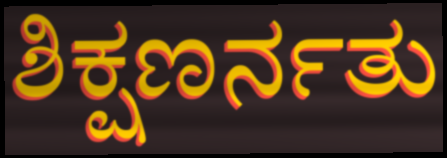
ಶಿಕ್ಷಣರ್ನತು